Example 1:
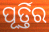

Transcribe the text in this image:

ପୂର୍ତ୍ତିର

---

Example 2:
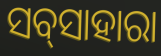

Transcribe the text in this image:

ସବ୍‌ସାହାରା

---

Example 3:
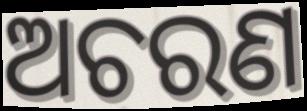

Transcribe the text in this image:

ଅଚରଣ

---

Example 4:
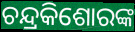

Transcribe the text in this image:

ଚନ୍ଦ୍ରକିଶୋରଙ୍କ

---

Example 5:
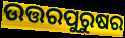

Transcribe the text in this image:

ଉତ୍ତରପୁରୁଷର